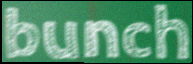
bunch